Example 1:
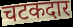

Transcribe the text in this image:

चटकदार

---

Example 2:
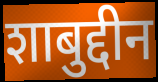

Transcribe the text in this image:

शाबुद्दीन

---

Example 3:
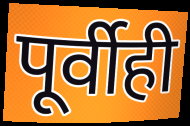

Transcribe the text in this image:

पूर्वीही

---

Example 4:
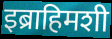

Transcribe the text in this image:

इब्राहिमशी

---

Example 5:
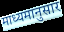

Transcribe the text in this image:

माध्यमानुसार